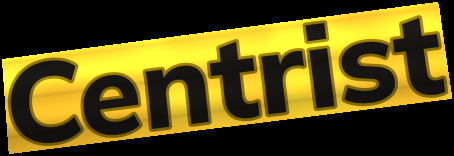
Centrist